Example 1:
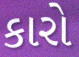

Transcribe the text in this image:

કારો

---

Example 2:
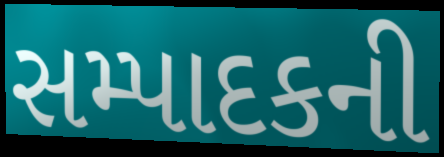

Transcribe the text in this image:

સમ્પાદકની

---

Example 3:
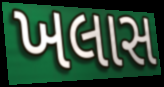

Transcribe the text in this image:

ખલાસ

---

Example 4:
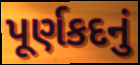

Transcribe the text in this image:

પૂર્ણકદનું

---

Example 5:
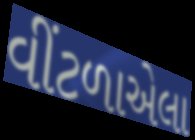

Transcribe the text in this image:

વીંટળાએલા